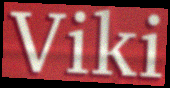
Viki